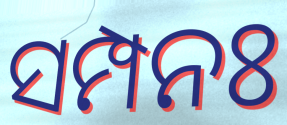
ସମ୍ପନଃ